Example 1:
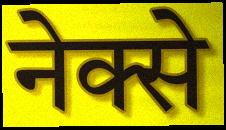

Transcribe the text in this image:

नेक्से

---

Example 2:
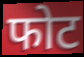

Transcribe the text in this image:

फोट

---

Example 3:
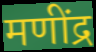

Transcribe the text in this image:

मणींद्र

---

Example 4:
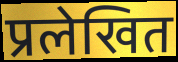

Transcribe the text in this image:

प्रलेखित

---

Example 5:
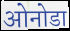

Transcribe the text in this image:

ओनोडा